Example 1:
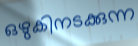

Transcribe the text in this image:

ഒഴുകിനടക്കുന്ന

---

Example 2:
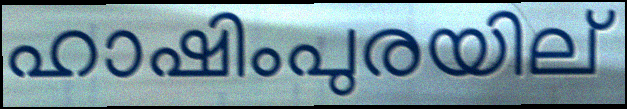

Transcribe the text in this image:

ഹാഷിംപുരയില്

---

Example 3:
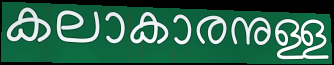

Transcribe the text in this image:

കലാകാരനുള്ള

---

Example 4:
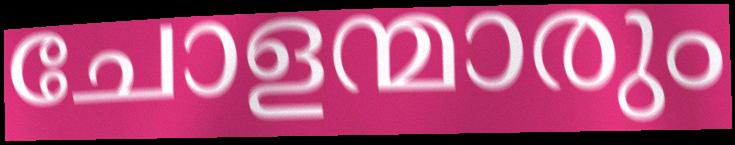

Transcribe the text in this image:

ചോളന്മാരും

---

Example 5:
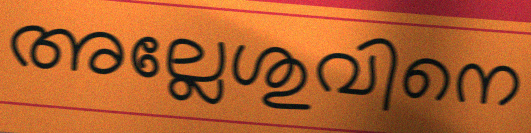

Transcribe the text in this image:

അല്ലേശുവിനെ